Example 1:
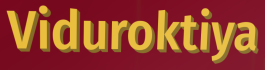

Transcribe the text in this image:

Viduroktiya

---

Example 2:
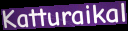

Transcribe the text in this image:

Katturaikal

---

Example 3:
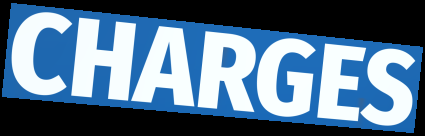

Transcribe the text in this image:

CHARGES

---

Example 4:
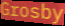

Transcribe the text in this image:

Grosby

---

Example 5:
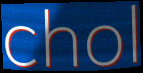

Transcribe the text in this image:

chol